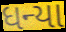
ધન્યા